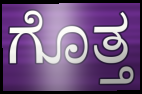
ಗೊತ್ತ